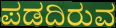
ಪಡದಿರುವ